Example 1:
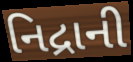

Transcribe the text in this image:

નિદ્રાની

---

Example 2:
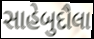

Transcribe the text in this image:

સાહેબુદૌલા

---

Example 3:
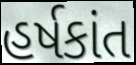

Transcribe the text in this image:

હર્ષકાંત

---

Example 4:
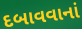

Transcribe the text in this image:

દબાવવાનાં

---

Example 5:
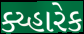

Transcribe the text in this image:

ક્ય્હારેક